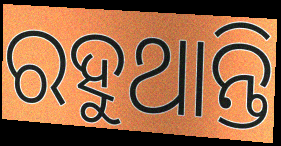
ରହୁଥାନ୍ତି